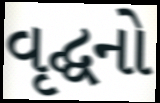
વૃદ્ઘનો